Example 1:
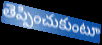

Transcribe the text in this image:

తెప్పించుకుంటూ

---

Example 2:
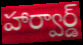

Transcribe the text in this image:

హార్వార్డ్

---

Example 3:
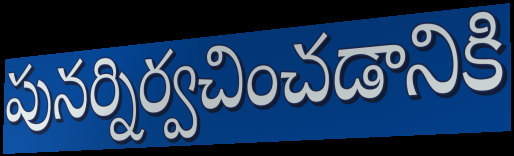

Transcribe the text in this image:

పునర్నిర్వచించడానికి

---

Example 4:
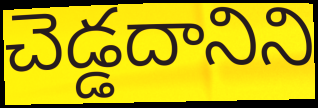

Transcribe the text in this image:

చెడ్డదానిని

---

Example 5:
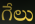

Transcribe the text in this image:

గేలు